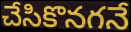
చేసికొనగనే